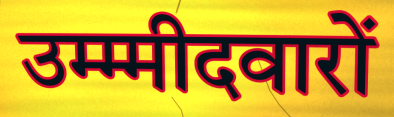
उम्म्मीदवारों